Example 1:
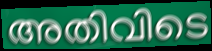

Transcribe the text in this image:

അതിവിടെ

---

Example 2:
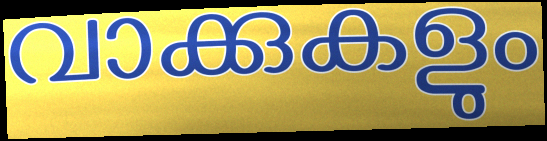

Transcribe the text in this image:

വാക്കുകളും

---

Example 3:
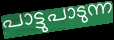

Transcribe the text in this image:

പാട്ടുപാടുന്ന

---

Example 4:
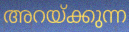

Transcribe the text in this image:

അറയ്ക്കുന്ന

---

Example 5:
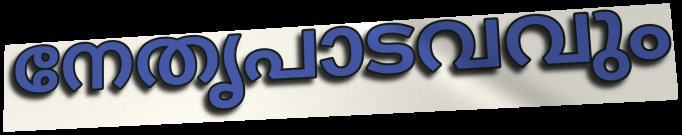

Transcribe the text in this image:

നേതൃപാടവവും